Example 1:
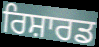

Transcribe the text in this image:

ਰਿਸ਼ਾਰਡ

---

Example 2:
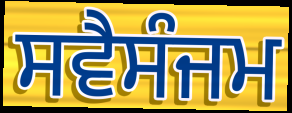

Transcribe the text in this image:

ਸਵੈਸੰਜਮ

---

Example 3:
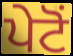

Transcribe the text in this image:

ਪੇਟੋਂ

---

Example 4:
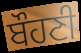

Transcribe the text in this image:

ਬੌਹਣੀ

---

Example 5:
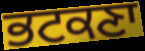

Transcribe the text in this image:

ਭਟਕਣਾ